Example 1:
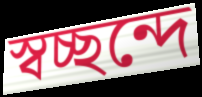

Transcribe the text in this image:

স্বচ্ছন্দে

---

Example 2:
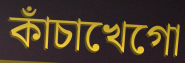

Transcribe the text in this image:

কাঁচাখেগো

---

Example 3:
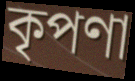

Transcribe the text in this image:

কৃপণা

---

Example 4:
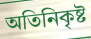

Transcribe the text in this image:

অতিনিকৃষ্ট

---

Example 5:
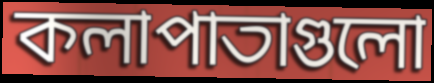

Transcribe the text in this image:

কলাপাতাগুলো